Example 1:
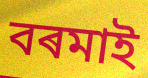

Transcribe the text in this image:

বৰমাই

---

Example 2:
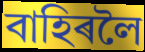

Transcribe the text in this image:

বাহিৰলৈ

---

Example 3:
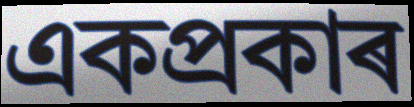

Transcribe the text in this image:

একপ্ৰকাৰ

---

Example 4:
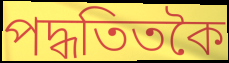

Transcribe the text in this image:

পদ্ধতিতকৈ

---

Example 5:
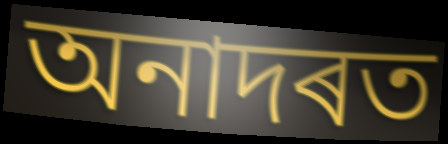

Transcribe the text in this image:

অনাদৰত